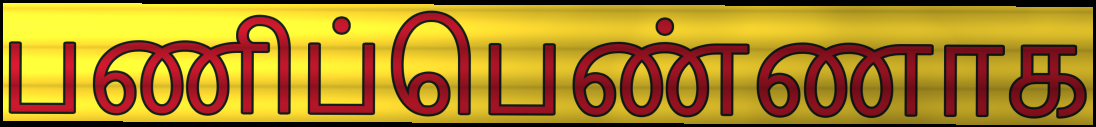
பணிப்பெண்ணாக